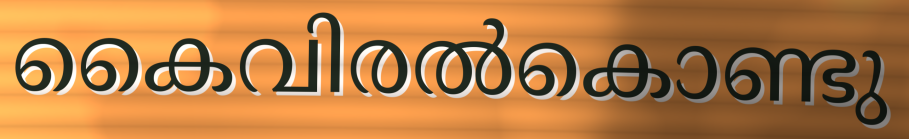
കൈവിരൽകൊണ്ടു